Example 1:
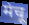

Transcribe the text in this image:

मंचू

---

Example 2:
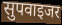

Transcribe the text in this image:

सुपवाइजर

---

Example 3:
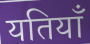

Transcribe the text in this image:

यतियाँ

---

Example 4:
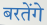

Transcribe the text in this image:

बरतेंगे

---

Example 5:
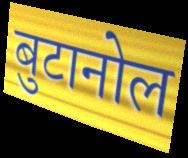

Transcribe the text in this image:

बुटानोल